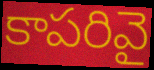
కాపరివై